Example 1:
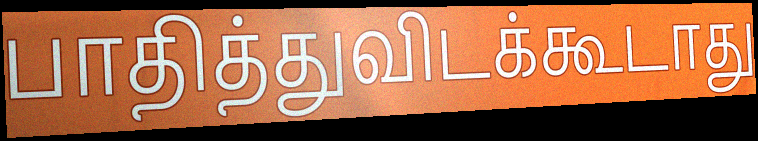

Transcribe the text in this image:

பாதித்துவிடக்கூடாது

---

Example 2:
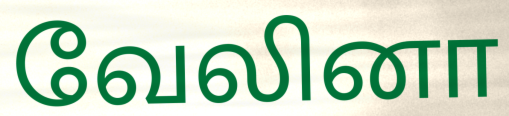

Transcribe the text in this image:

வேலினா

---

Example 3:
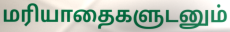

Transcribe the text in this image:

மரியாதைகளுடனும்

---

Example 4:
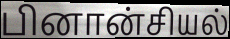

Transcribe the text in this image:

பினான்சியல்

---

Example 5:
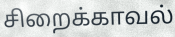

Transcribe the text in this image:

சிறைக்காவல்